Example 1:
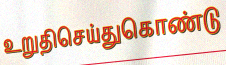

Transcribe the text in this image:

உறுதிசெய்துகொண்டு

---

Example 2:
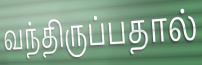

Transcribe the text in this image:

வந்திருப்பதால்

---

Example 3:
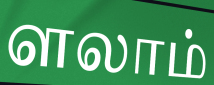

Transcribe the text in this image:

ளலாம்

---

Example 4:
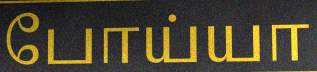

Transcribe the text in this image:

போய்யா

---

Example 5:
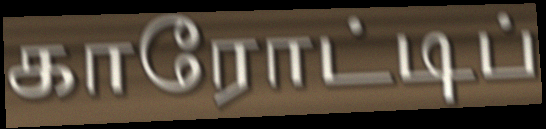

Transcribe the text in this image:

காரோட்டிப்